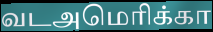
வடஅமெரிக்கா